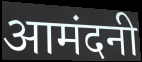
आमंदनी